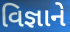
વિજ્ઞાને